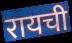
रायची